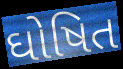
ઘોષિત